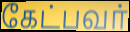
கேட்பவர்